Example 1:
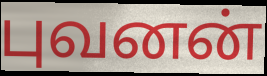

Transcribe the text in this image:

புவனன்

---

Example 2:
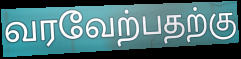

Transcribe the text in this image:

வரவேற்பதற்கு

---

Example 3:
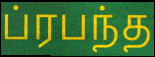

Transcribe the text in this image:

ப்ரபந்த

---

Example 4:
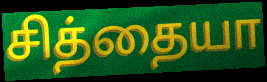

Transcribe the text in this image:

சித்தையா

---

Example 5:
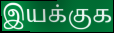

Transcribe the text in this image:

இயக்குக